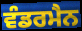
ਵੰਡਰਮੈਨ